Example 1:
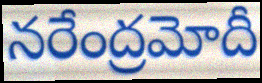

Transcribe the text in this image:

నరేంద్రమోదీ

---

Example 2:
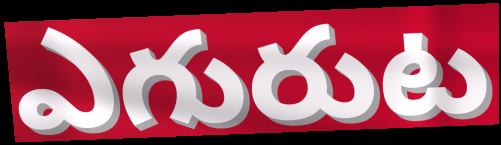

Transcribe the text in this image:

ఎగురుట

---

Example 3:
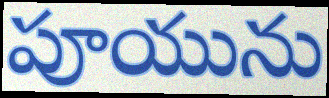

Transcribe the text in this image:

పూయును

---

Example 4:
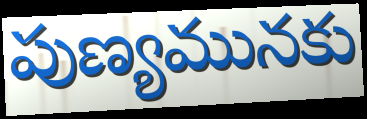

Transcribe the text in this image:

పుణ్యమునకు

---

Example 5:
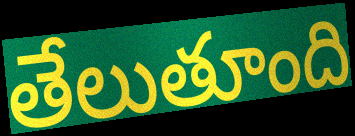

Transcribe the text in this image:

తేలుతూంది